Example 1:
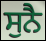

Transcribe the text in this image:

ਸੁਨੈ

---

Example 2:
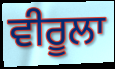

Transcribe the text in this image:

ਵੀਰੂਲਾ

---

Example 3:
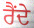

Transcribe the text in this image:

ਰੈਂਦੇ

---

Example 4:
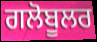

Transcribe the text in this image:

ਗਲੋਬੂਲਰ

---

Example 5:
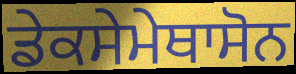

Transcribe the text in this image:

ਡੇਕਸੇਮੇਥਾਸੋਨ